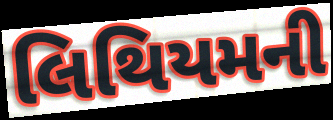
લિથિયમની